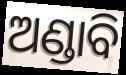
ଅଣ୍ଡାବି